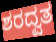
ಶರದ್ವತ